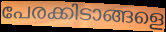
പേരക്കിടാങ്ങളെ